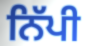
ਨਿੱਪੀ